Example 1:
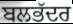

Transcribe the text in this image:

ਬਲਭੱਦਰ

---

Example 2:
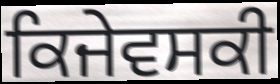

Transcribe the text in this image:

ਕਿਜੇਵਸਕੀ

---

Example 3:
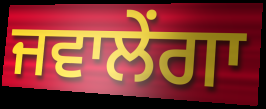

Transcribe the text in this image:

ਜਵਾਲੇਂਗਾ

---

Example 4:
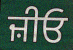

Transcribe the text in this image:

ਜ਼ੀਓ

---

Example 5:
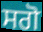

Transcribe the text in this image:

ਸਗੋ